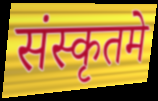
संस्कृतमे